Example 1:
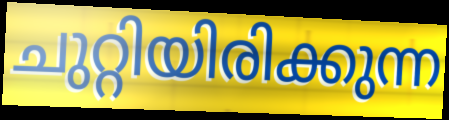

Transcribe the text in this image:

ചുറ്റിയിരിക്കുന്ന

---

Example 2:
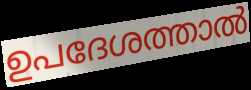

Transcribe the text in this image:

ഉപദേശത്താൽ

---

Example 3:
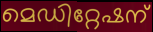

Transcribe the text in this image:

മെഡിറ്റേഷന്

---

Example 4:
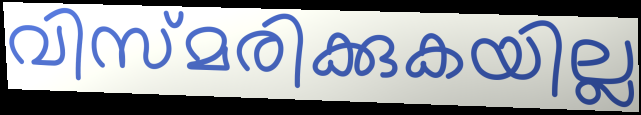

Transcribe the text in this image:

വിസ്മരിക്കുകയില്ല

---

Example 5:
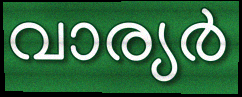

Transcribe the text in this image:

വാര്യർ